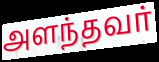
அளந்தவர்